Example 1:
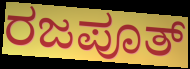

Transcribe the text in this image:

ರಜಪೂತ್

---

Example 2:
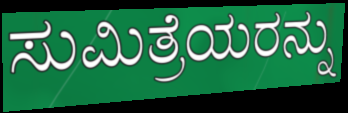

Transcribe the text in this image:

ಸುಮಿತ್ರೆಯರನ್ನು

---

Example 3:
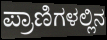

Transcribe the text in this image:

ಪ್ರಾಣಿಗಳಲ್ಲಿನ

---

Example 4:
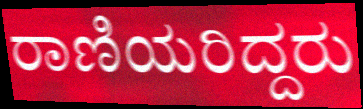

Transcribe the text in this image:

ರಾಣಿಯರಿದ್ದರು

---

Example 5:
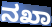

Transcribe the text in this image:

ನಖಾ